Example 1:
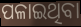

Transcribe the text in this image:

ପଳାଇଥିବା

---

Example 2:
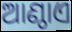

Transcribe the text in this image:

ଆଣ୍ଠାଏ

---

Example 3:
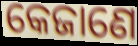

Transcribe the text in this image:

କେଜାଣେ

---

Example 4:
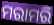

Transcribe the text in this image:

ମରାମରି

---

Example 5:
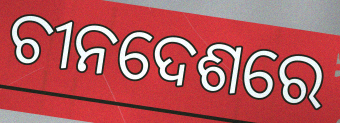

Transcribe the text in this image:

ଚୀନଦେଶରେ